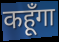
कहूँगा